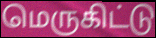
மெருகிட்டு